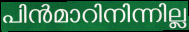
പിൻമാറിനിന്നില്ല